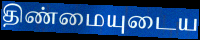
திண்மையுடைய